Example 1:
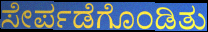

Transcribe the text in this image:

ಸೇರ್ಪಡೆಗೊಂಡಿತು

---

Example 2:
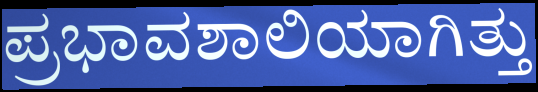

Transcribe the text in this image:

ಪ್ರಭಾವಶಾಲಿಯಾಗಿತ್ತು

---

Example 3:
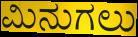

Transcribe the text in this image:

ಮಿನುಗಲು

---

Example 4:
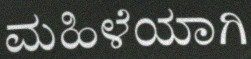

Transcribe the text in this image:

ಮಹಿಳೆಯಾಗಿ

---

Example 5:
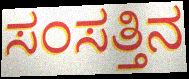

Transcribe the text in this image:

ಸಂಸತ್ತಿನ